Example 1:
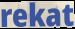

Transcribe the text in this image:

rekat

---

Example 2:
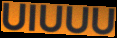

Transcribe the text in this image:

UIUUU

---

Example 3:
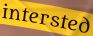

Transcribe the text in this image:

intersted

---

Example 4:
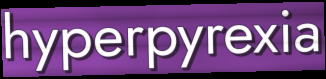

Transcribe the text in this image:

hyperpyrexia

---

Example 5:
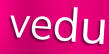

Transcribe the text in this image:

vedu